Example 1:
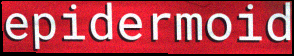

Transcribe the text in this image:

epidermoid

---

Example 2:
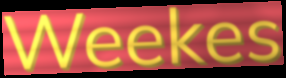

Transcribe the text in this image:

Weekes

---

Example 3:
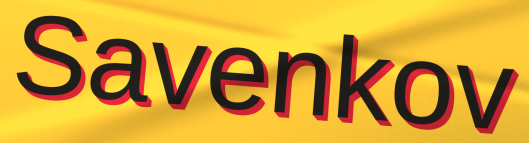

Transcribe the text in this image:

Savenkov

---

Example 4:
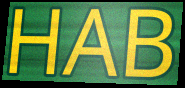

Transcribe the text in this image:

HAB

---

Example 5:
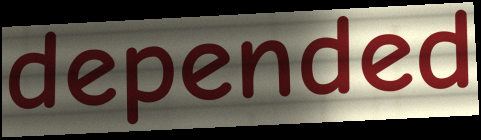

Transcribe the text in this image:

depended